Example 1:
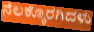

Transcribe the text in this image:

ನೆಲಕ್ಕೊರಗಿದಳು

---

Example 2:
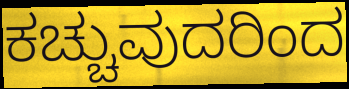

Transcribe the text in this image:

ಕಚ್ಚುವುದರಿಂದ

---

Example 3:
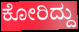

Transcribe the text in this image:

ಕೋರಿದ್ದು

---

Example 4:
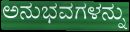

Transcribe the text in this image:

ಅನುಭವಗಳನ್ನು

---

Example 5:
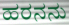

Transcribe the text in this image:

ಹರನನು